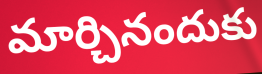
మార్చినందుకు